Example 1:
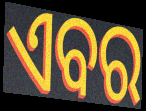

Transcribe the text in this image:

ଏବର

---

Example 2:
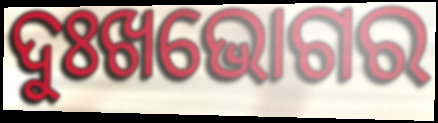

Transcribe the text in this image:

ଦୁଃଖଭୋଗର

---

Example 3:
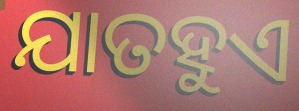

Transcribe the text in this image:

ଯାତହୁଏ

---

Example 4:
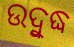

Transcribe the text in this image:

ଉଦ୍ବୁଦ୍ଧ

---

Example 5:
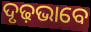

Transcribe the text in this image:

ଦୃଢ଼ଭାବେ